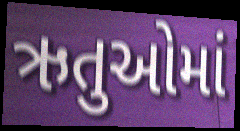
ઋતુઓમાં